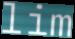
lim